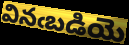
వినఁబడియె